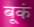
बूकं